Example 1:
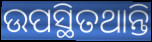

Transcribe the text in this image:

ଉପସ୍ଥିତଥାନ୍ତି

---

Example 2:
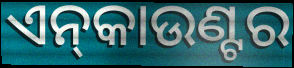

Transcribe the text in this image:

ଏନ୍‌କାଉଣ୍ଟର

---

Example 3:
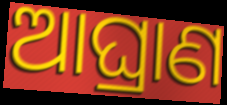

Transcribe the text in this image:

ଆଘ୍ରାଣ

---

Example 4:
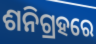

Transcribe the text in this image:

ଶନିଗ୍ରହରେ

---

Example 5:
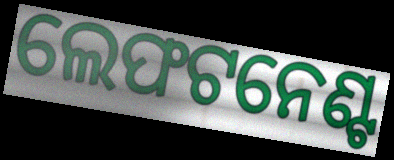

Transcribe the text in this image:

ଲେଫଟନେଣ୍ଟ